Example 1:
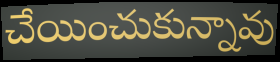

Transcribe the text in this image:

చేయించుకున్నావు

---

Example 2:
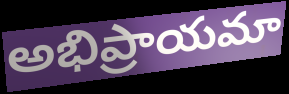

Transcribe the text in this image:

అభిప్రాయమా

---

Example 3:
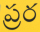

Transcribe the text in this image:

ప్రర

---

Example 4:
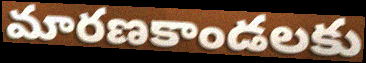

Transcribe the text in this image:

మారణకాండలకు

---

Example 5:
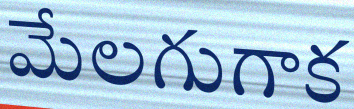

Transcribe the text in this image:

మేలగుగాక